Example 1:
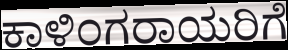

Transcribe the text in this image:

ಕಾಳಿಂಗರಾಯರಿಗೆ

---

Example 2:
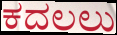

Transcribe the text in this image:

ಕದಲಲು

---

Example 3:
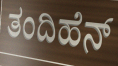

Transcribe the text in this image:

ತಂದಿಹೆನ್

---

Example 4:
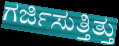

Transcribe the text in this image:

ಗರ್ಜಿಸುತ್ತಿತ್ತು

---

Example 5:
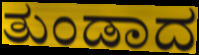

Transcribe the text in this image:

ತುಂಡಾದ